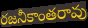
రజనీకాంతరావు